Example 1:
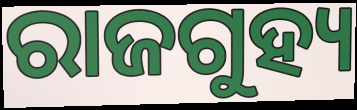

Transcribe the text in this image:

ରାଜଗୁହ୍ୟ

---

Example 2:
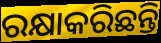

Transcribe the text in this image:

ରକ୍ଷାକରିଛନ୍ତି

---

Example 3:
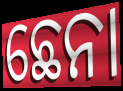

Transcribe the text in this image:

ଛେନା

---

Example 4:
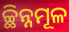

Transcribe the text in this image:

ଚ୍ଛିନ୍ନମୂଳ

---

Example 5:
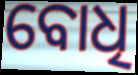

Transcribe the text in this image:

ବୋଧି